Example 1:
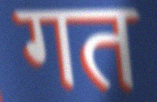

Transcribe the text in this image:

गत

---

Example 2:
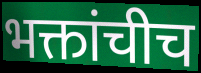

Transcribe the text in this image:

भक्तांचीच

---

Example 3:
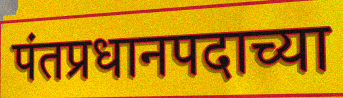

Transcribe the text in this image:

पंतप्रधानपदाच्या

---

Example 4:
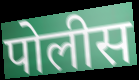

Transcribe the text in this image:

पोलीस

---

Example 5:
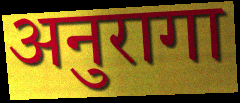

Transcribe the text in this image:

अनुरागा